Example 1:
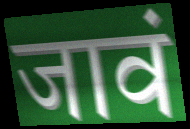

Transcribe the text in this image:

जावं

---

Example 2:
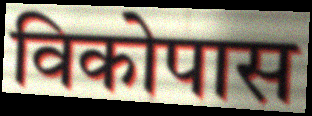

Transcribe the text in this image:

विकोपास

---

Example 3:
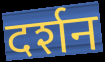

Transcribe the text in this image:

दर्शन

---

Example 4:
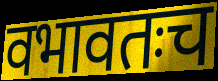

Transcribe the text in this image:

वभावतःच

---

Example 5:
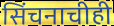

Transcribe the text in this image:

सिंचनाचीही